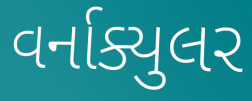
વર્નાક્યુલર